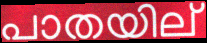
പാതയില്